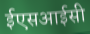
ईएसआईसी